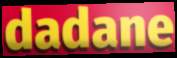
dadane